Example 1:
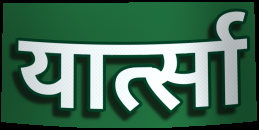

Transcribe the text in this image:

यार्त्सा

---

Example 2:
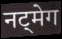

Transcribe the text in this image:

नट्मेग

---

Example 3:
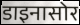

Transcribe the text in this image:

डाइनासोर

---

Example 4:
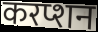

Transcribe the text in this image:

करप्‍शन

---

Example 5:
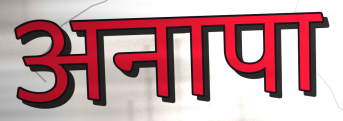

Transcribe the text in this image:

अनापा